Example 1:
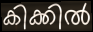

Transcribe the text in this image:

കിക്കിൽ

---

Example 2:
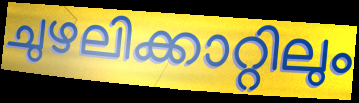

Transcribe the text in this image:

ചുഴലിക്കാറ്റിലും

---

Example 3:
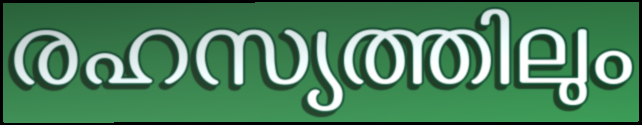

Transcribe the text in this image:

രഹസ്യത്തിലും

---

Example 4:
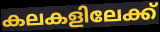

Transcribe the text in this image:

കലകളിലേക്ക്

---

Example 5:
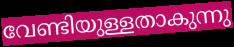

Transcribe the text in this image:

വേണ്ടിയുള്ളതാകുന്നു